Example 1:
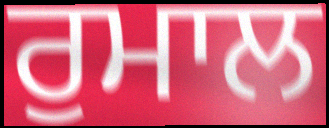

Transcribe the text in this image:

ਰੁਮਾਲ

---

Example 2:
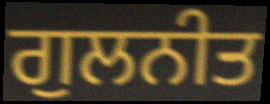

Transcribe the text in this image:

ਗੁਲਨੀਤ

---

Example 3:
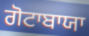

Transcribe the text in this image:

ਗੋਟਾਬਾਯਾ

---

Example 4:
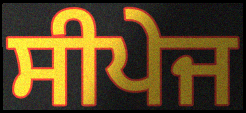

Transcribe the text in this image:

ਸੀਪੇਜ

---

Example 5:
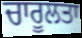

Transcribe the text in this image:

ਚਾਰੂਲਤਾ